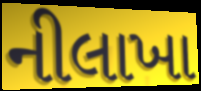
નીલાખા